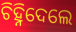
ଚିହ୍ନିଦେଲେ